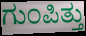
ಗುಂಪಿತ್ತು